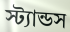
স্ট্যান্ডস